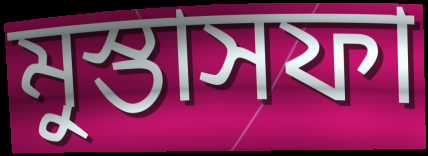
মুস্তাসফা